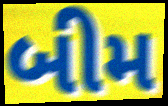
બીમ